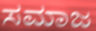
ಸಮಾಜ